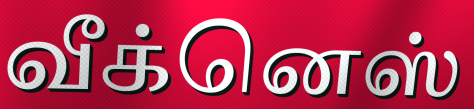
வீக்னெஸ்